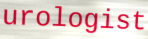
urologist